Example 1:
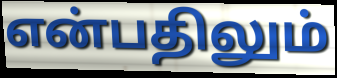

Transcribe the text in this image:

என்பதிலும்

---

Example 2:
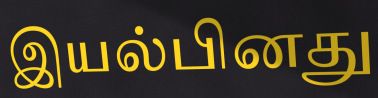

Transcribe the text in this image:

இயல்பினது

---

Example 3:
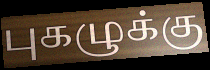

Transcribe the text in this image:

புகழுக்கு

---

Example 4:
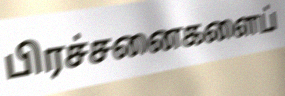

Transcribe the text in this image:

பிரச்சனைகளைப்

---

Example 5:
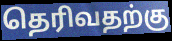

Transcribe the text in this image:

தெரிவதற்கு